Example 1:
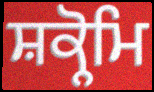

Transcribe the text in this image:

ਸ਼ਕ੍ਨੋਮਿ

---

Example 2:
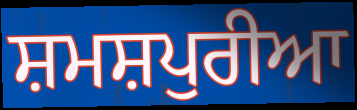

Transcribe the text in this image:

ਸ਼ਮਸ਼ਪੁਰੀਆ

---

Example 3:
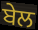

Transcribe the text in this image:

ਬੇਲ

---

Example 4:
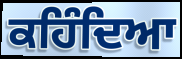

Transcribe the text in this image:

ਕਹਿੰਦਿਆ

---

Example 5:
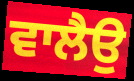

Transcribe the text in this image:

ਵਾਲੈਉ